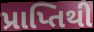
પ્રાપ્તિથી